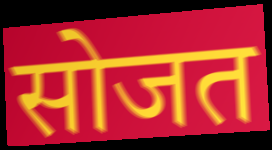
सोजत